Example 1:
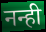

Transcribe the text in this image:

नन्ही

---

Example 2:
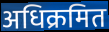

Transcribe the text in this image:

अधिक्रमित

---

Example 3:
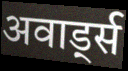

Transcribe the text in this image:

अवार्ड्स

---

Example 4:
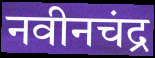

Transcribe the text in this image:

नवीनचंद्र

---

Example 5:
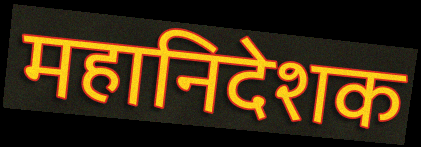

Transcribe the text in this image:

महानिदेशक